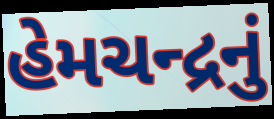
હેમચન્દ્રનું